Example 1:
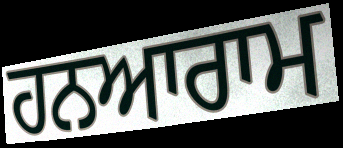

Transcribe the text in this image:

ਹਨਆਰਾਮ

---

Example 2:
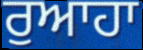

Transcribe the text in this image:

ਰੁਆਹਾ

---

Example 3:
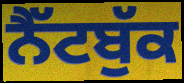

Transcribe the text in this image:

ਨੈੱਟਬੁੱਕ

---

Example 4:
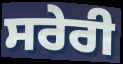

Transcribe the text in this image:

ਸਰੇਰੀ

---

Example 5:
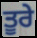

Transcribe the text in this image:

ਤੂਰੇ